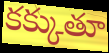
కక్కుతూ